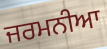
ਜਰਮਨੀਆ